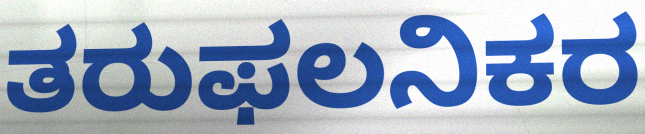
ತರುಫಲನಿಕರ